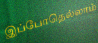
இப்போதெல்லாம்